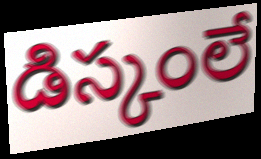
డిస్కంలే